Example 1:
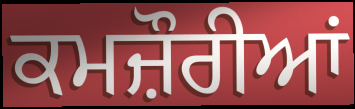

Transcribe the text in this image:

ਕਮਜ਼ੌਰੀਆਂ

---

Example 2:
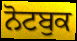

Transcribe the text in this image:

ਨੋਟਬੁਕ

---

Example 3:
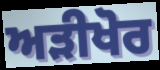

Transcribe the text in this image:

ਅੜੀਖੋਰ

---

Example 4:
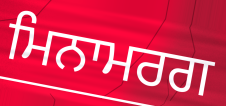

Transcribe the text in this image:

ਮਿਨਾਮਰਗ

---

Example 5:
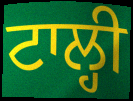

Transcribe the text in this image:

ਟਾਲ੍ਹੀ